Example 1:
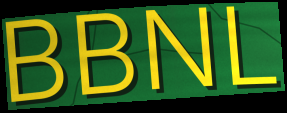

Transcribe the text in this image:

BBNL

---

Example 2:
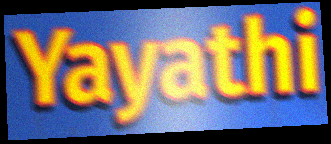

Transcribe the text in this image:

Yayathi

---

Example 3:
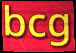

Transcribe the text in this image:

bcg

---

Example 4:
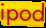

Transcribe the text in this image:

ipod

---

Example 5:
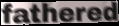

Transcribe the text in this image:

fathered